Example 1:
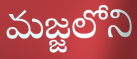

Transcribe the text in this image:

మజ్జలోని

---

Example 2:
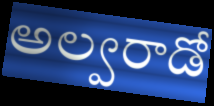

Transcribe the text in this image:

అల్వరాడో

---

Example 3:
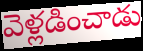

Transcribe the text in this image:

వెళ్లడించాడు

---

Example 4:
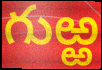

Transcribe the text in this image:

గుఱ్ఱ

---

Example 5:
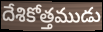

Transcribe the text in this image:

దేశికోత్తముడు